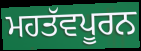
ਮਹਤੱਵਪੂਰਨ